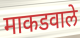
माकडवाले